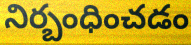
నిర్బంధించడం